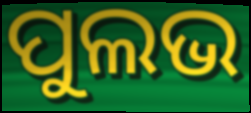
ପୁଲଭ